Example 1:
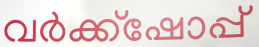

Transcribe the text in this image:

വർക്ക്ഷോപ്പ്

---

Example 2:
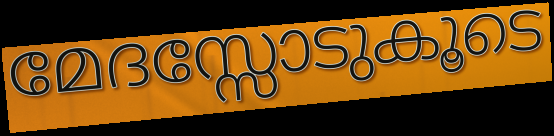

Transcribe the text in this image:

മേദസ്സോടുകൂടെ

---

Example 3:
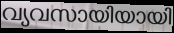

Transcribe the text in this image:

വ്യവസായിയായി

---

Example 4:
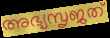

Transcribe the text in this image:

അഭ്യസൃജത്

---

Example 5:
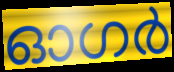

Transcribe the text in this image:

ഓഗർ